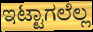
ಇಟ್ಟಾಗಲೆಲ್ಲ